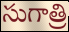
సుగాత్రి